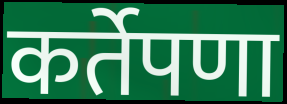
कर्तेपणा